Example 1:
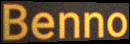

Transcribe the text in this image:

Benno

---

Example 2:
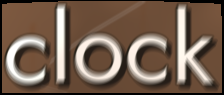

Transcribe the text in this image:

clock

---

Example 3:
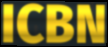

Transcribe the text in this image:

ICBN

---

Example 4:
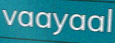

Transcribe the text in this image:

vaayaal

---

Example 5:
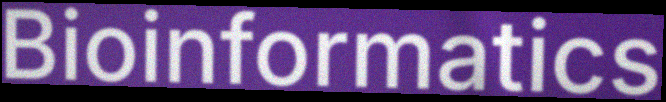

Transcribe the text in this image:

Bioinformatics